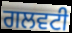
ਗਲਵਟੀ